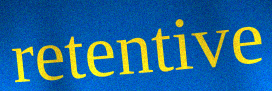
retentive